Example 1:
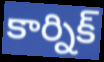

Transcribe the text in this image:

కార్నిక్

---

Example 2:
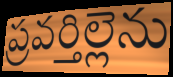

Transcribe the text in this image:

ప్రవర్తిల్లెను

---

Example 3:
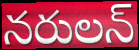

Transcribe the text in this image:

నరులన్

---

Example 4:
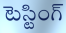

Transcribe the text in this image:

టెస్టింగ్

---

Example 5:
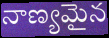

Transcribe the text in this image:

నాణ్యమైన